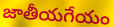
జాతీయగేయం